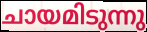
ചായമിടുന്നു